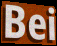
Bei